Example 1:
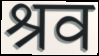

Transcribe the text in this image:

श्रव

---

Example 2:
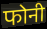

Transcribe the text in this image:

फोनी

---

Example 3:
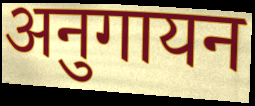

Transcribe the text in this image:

अनुगायन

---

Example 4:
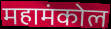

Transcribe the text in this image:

महामंकोल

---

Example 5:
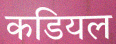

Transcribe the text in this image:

कडियल